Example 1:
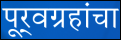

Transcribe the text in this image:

पूर्वग्रहांचा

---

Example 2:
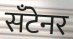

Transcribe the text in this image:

सँटेनर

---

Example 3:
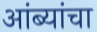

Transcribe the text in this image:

आंब्यांचा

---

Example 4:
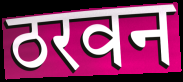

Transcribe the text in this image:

ठरवन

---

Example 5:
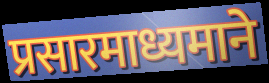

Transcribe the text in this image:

प्रसारमाध्यमाने